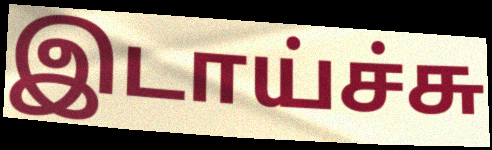
இடாய்ச்சு